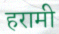
हरामी